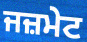
ਜਜ਼ਮੇਟ